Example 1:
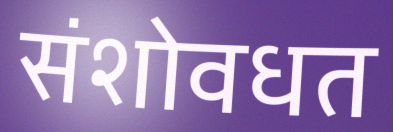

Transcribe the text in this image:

संशोवधत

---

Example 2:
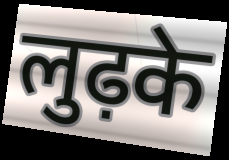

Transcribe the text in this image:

लुढ़के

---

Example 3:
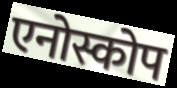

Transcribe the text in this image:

एनोस्कोप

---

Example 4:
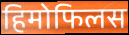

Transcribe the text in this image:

हिमोफिलस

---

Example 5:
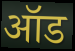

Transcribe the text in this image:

ऑड